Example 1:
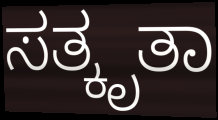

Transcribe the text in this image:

ಸತ್ಕೃತಾ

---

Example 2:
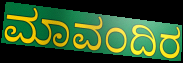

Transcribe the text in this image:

ಮಾವಂದಿರ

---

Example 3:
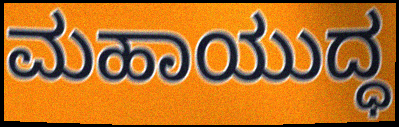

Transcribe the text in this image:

ಮಹಾಯುದ್ಧ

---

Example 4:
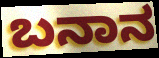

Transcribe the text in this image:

ಬನಾನ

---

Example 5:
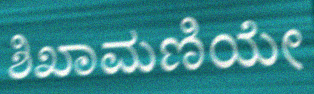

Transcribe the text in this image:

ಶಿಖಾಮಣಿಯೇ